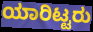
ಯಾರಿಟ್ಟರು